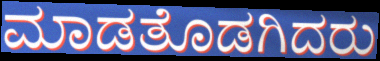
ಮಾಡತೊಡಗಿದರು